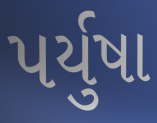
પર્યુષા